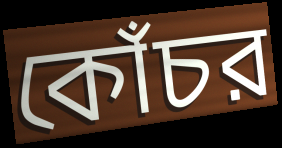
কোঁচর